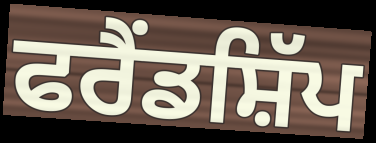
ਫਰੈਂਡਸ਼ਿੱਪ